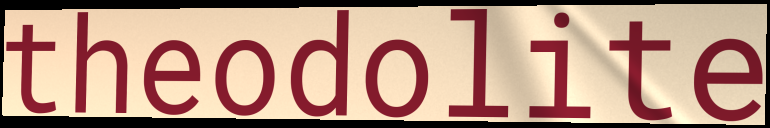
theodolite